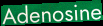
Adenosine